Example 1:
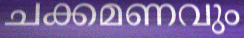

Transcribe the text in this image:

ചക്കമണവും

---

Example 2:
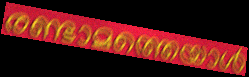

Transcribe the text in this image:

രണ്ടാമത്തെയാൾ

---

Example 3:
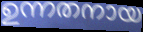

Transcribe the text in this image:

ഉന്നതനായ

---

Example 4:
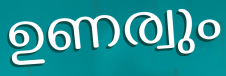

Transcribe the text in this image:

ഉണര്വും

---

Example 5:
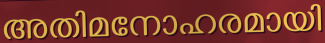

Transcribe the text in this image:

അതിമനോഹരമായി